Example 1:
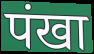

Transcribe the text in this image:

पंखा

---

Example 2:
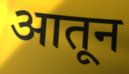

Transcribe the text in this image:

आतून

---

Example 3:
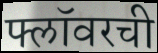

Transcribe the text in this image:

फ्लॉवरची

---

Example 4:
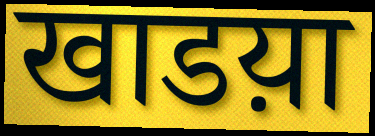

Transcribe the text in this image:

खाडय़ा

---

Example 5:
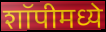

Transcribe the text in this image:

शॉपीमध्ये